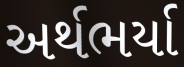
અર્થભર્યા